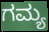
ಗಮ್ಯ